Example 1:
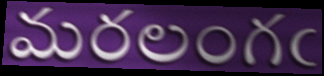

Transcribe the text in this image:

మరలంగఁ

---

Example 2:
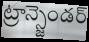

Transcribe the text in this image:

ట్రాన్స్జెండర్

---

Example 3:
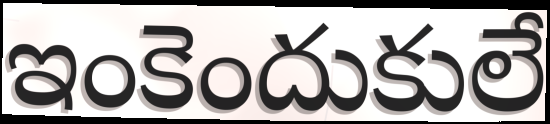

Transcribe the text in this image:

ఇంకెందుకులే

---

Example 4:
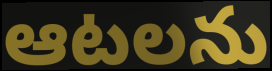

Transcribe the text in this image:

ఆటలను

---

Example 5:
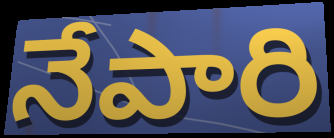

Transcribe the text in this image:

నేపారి